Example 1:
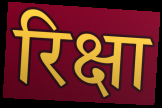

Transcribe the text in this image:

रिक्षा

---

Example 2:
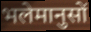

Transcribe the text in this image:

भलेमानुसों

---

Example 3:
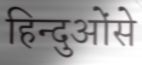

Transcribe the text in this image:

हिन्दुओंसे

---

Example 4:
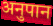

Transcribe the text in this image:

अनुपान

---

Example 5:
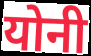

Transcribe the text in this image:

योनी